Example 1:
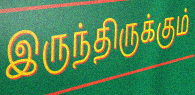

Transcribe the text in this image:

இருந்திருக்கும்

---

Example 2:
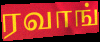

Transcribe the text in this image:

ரவாங்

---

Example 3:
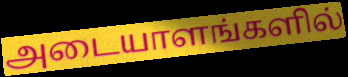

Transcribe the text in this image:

அடையாளங்களில்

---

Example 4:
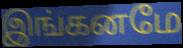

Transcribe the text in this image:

இங்கனமே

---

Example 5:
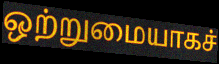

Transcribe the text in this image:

ஒற்றுமையாகச்